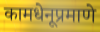
कामधेनूप्रमाणे